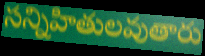
సన్నిహితులవుతారు